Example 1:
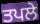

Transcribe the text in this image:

ਤਪਲੇ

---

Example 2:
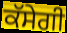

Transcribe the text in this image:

ਕੱਸੇਗੀ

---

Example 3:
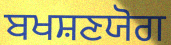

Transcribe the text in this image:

ਬਖਸ਼ਣਯੋਗ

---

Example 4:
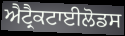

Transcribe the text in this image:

ਐਟ੍ਰੈਕਟਾਈਲੋਡਸ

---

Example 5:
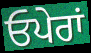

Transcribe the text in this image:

ਓਪੇਰਾਂ